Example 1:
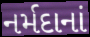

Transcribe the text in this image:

નર્મદાનાં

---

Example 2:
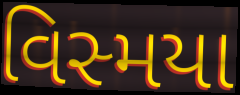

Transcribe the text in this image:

વિસ્મયા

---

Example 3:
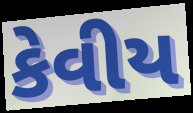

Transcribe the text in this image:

કેવીય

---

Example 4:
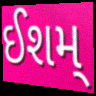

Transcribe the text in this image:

ઈશમ્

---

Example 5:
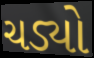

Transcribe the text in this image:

ચડ્યો